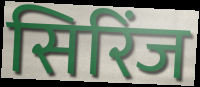
सिरिंज